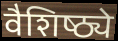
वैशिष्ठ्ये